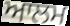
ਆਲਮ